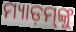
ମ୍ୟାଡ଼ମ୍‌ଙ୍କୁ